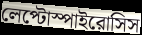
লেপ্টোস্পাইরোসিস